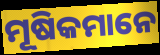
ମୂଷିକମାନେ